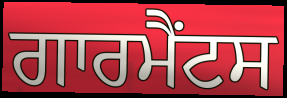
ਗਾਰਮੈਂਟਸ